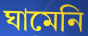
ঘামেনি